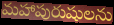
మహాపురుషులను